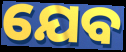
ଯେବ